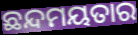
ଛନ୍ଦମୟତାର